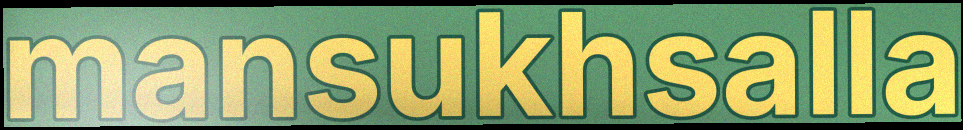
mansukhsalla